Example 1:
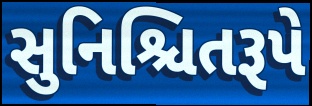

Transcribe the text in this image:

સુનિશ્ચિતરૂપે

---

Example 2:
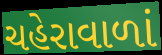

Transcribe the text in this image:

ચહેરાવાળાં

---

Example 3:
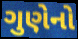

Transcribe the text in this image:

ગુણેનો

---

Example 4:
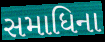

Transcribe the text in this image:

સમાધિના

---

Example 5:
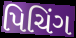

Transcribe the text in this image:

પિચિંગ